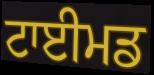
ਟਾਈਮਡ